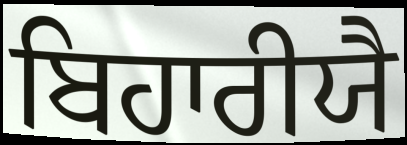
ਬਿਹਾਰੀਯੈ